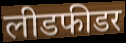
लीडफीडर